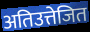
अतिउत्तेजित